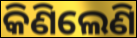
କିଣିଲେଣି